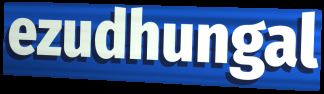
ezudhungal